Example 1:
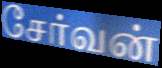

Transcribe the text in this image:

சேர்வன்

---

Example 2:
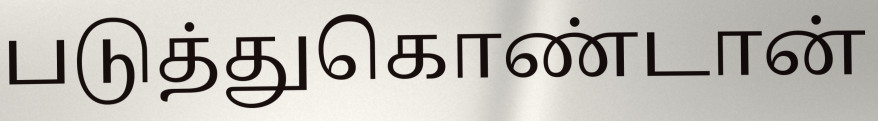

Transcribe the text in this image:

படுத்துகொண்டான்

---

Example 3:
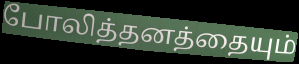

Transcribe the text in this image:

போலித்தனத்தையும்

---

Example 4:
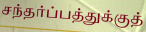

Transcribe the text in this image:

சந்தர்ப்பத்துக்குத்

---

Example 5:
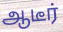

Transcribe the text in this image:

ஆடீர்